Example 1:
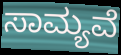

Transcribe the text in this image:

ಸಾಮ್ಯವೆ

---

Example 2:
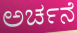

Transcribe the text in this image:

ಅರ್ಚನೆ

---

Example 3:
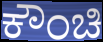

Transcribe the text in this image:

ಕೌಂಚಿ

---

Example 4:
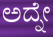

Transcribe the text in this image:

ಅದ್ನೇ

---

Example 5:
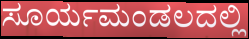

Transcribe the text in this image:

ಸೂರ್ಯಮಂಡಲದಲ್ಲಿ